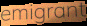
emigrant